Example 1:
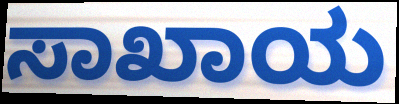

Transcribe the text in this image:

ಸಾಖಾಯ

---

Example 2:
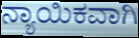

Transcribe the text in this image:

ನ್ಯಾಯಿಕವಾಗಿ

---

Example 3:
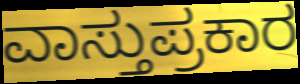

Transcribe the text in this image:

ವಾಸ್ತುಪ್ರಕಾರ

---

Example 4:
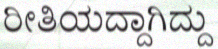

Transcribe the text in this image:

ರೀತಿಯದ್ದಾಗಿದ್ದು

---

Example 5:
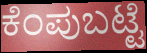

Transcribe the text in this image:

ಕೆಂಪುಬಟ್ಟೆ